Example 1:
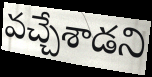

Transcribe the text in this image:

వచ్చేశాడని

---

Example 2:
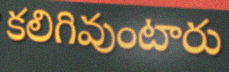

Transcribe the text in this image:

కలిగివుంటారు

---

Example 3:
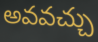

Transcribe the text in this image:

అవవచ్చు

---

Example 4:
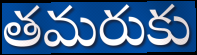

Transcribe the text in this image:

తమరుకు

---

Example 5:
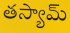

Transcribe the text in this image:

తస్యామ్